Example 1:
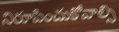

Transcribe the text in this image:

నిరూపించుకోవాల్సి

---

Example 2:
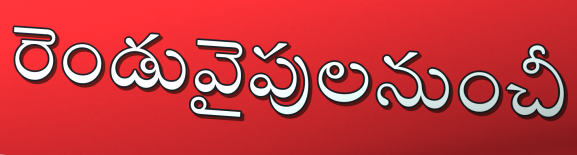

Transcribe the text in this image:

రెండువైపులనుంచీ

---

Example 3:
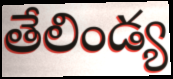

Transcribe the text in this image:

తేలిండ్య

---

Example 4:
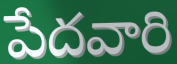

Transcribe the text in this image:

పేదవారి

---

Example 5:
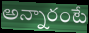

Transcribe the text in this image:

అన్నారంటే